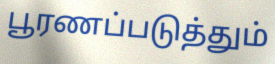
பூரணப்படுத்தும்